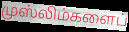
முஸ்லிம்களைப்